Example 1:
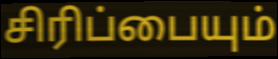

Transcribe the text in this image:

சிரிப்பையும்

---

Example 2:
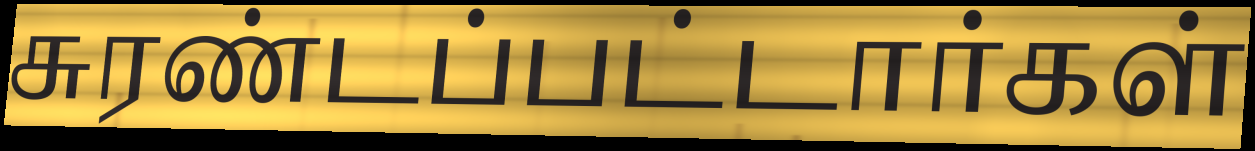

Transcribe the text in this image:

சுரண்டப்பட்டார்கள்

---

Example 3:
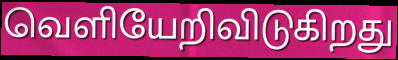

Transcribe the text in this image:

வெளியேறிவிடுகிறது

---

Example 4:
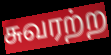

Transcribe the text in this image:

சுவரற்ற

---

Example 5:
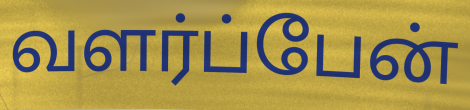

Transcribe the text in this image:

வளர்ப்பேன்